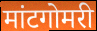
मांटगोमरी